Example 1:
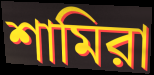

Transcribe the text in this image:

শামিরা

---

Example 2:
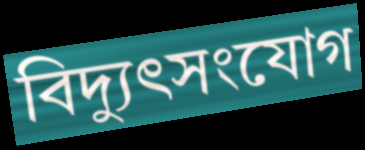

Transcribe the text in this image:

বিদ্যুৎসংযোগ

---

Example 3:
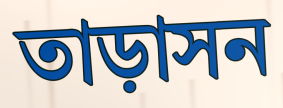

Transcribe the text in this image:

তাড়াসন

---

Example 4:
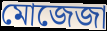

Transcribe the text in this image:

মোজেজা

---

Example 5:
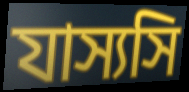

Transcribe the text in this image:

যাস্যসি